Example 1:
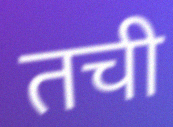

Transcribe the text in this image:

तची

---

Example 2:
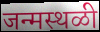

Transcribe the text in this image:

जन्मस्थळी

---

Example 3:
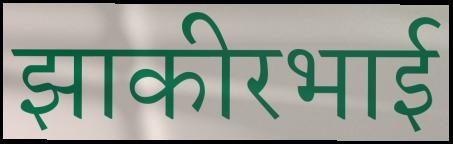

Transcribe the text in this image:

झाकीरभाई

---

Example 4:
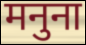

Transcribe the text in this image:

मनुना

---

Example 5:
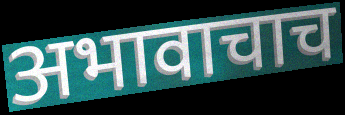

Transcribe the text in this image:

अभावाचाच